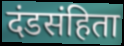
दंडसंहिता